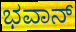
ಭವಾನ್